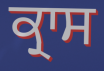
ਕ੍ਰਾਸ